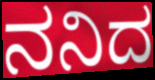
ನನಿದ